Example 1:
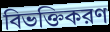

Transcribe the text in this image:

বিভক্তিকরণ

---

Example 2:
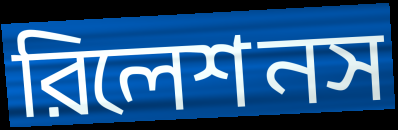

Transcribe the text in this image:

রিলেশনস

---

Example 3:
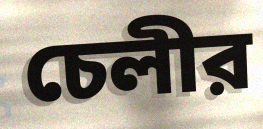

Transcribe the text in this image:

চেলীর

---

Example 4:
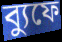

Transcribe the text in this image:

ব্যুফে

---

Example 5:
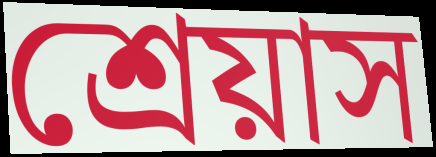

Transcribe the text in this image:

শ্রেয়াস